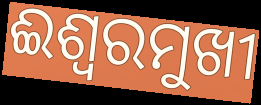
ଈଶ୍ୱରମୁଖୀ